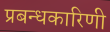
प्रबन्धकारिणी